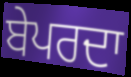
ਬੇਪਰਦਾ